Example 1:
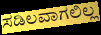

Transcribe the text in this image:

ಸಡಿಲವಾಗಲಿಲ್ಲ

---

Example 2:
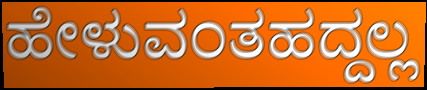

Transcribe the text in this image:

ಹೇಳುವಂತಹದ್ದಲ್ಲ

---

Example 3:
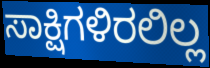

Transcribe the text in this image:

ಸಾಕ್ಷಿಗಳಿರಲಿಲ್ಲ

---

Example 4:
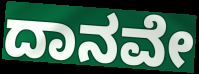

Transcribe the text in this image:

ದಾನವೇ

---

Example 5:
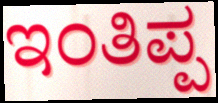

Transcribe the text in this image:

ಇಂತಿಪ್ಪ